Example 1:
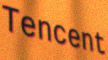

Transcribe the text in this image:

Tencent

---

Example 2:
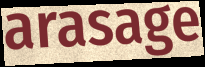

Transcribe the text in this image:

arasage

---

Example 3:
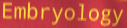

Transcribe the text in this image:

Embryology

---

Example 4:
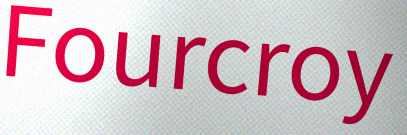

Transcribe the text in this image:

Fourcroy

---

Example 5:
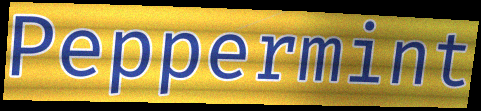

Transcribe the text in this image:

Peppermint